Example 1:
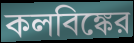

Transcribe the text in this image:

কলবিঙ্কের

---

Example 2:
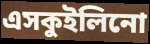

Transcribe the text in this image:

এসকুইলিনো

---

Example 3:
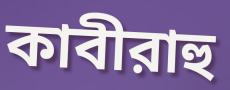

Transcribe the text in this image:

কাবীরাহু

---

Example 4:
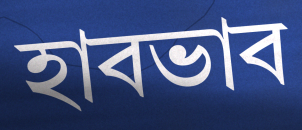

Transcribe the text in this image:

হাবভাব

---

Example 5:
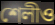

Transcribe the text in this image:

শেলীও